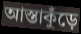
আস্তাকুঁড়ে